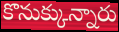
కొనుక్కున్నారు